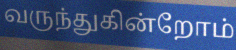
வருந்துகின்றோம்